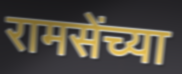
रामसेंच्या